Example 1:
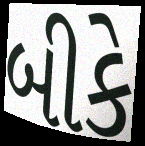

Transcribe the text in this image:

બીકે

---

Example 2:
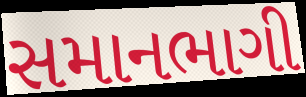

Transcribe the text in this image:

સમાનભાગી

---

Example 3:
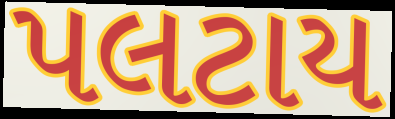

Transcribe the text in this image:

પલટાય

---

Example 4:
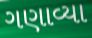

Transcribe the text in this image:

ગણાવ્યા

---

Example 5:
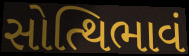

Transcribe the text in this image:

સોત્થિભાવં